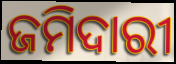
ଜମିଦାରୀ